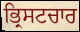
ਭ੍ਰਿਸਟਚਾਰ